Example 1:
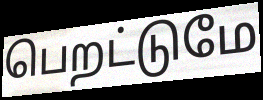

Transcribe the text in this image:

பெறட்டுமே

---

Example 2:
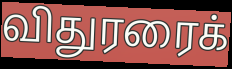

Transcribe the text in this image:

விதுரரைக்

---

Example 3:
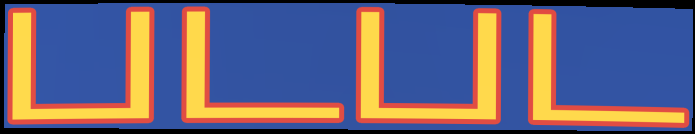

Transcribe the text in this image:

படபட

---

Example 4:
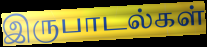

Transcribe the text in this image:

இருபாடல்கள்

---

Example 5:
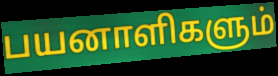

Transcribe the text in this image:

பயனாளிகளும்